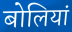
बोलियां